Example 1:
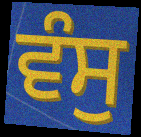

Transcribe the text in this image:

ਵੰਸੁ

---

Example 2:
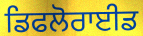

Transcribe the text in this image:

ਡਿਫਲੋਰਾਈਡ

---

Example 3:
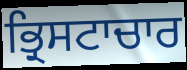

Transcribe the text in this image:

ਭ੍ਰਿਸਟਾਚਾਰ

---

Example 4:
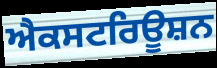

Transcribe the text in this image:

ਐਕਸਟਰਿਊਸ਼ਨ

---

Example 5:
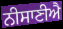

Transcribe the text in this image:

ਨੀਸਾਣੀਐ